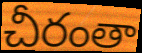
చీరంతా